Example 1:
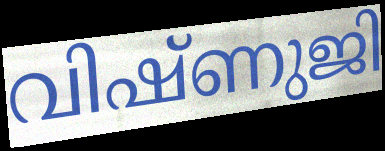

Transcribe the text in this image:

വിഷ്ണുജി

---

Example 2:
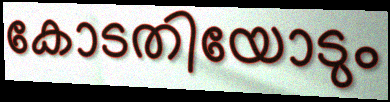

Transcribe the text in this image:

കോടതിയോടും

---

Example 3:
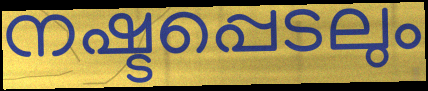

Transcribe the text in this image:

നഷ്ടപ്പെടലും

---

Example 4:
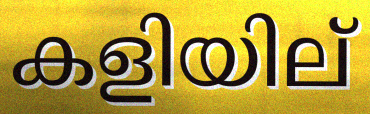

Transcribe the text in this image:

കളിയില്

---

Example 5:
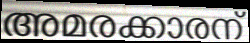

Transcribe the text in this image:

അമരക്കാരന്